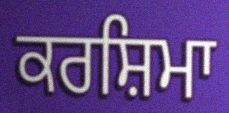
ਕਰਸ਼ਿਮਾ